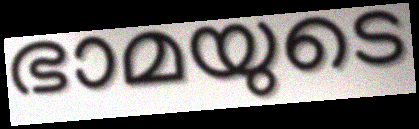
ഭാമയുടെ